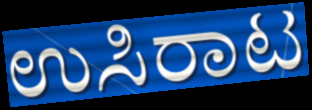
ಉಸಿರಾಟ